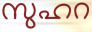
സുഹറ